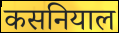
कसनियाल